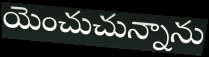
యెంచుచున్నాను